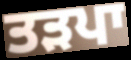
ਤੜਪਾ